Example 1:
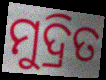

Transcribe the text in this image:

ମୁଦ୍ରିତ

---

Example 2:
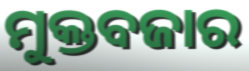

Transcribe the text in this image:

ମୁକ୍ତବଜାର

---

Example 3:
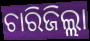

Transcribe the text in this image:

ଚାରିଜିଲ୍ଲା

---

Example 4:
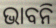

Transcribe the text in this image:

ଭାବନି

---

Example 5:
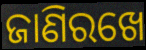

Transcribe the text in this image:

ଜାଣିରଖେ